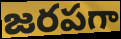
జరపగా